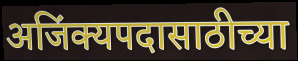
अजिंक्यपदासाठीच्या